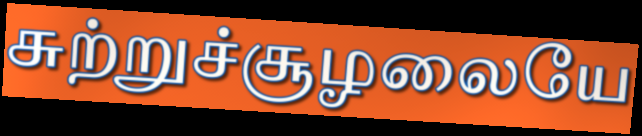
சுற்றுச்சூழலையே